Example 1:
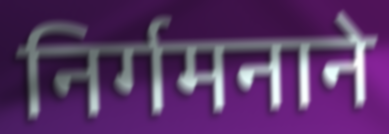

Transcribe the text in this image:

निर्गमनाने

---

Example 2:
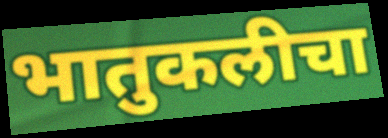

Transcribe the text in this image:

भातुकलीचा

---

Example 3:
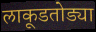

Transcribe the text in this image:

लाकूडतोड्या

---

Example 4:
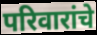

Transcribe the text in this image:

परिवारांचे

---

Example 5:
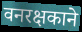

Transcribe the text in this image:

वनरक्षकाने